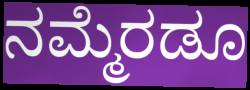
ನಮ್ಮೆರಡೂ